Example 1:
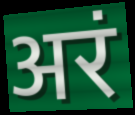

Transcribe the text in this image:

अरं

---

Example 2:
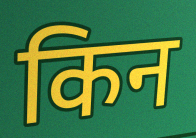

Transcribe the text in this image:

किन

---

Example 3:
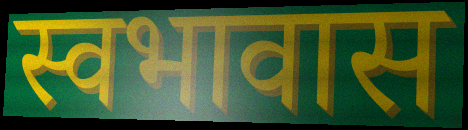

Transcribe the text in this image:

स्वभावास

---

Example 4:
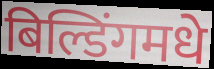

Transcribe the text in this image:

बिल्डिंगमधे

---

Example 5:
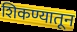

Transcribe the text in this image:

शिकण्यातून